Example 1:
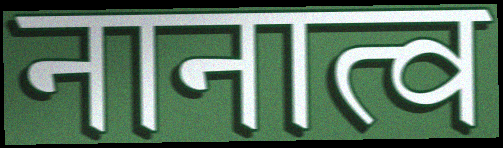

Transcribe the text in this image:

नानात्व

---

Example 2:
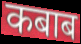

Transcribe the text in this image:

कबाब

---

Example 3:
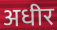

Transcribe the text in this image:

अधीर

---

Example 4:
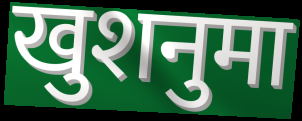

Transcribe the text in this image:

खुशनुमा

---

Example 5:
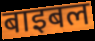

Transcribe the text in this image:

बाइबल